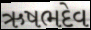
ઋષભદેવ